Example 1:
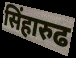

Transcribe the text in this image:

सिंहारुढ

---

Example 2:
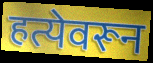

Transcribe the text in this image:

हत्येवरून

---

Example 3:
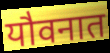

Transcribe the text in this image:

यौवनात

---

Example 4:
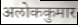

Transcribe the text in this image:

अलोककुमार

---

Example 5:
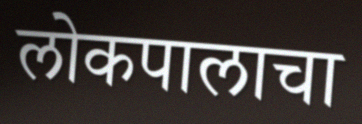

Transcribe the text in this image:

लोकपालाचा